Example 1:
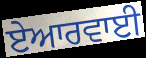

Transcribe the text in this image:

ਏਆਰਵਾਈ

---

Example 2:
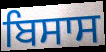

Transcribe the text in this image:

ਬਿਸਾਸ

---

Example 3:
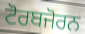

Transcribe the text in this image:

ਟੋਰਬਜੋਰਨ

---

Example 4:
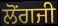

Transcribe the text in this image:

ਲੋਂਗਜੀ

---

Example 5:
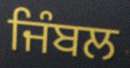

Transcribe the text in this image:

ਜਿੰਬਲ